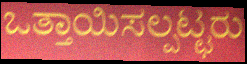
ಒತ್ತಾಯಿಸಲ್ಪಟ್ಟರು